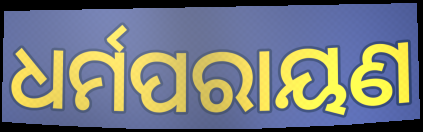
ଧର୍ମପରାୟଣ